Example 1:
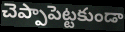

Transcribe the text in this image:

చెప్పాపెట్టకుండా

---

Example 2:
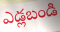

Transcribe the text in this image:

ఎడ్లబండి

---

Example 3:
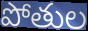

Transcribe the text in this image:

పోతుల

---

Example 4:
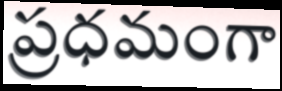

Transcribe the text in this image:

ప్రధమంగా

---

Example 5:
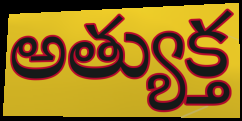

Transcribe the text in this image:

అత్యుక్త